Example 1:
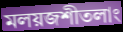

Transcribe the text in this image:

মলয়জশীতলাং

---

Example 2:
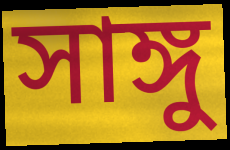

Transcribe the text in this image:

সাঙ্গু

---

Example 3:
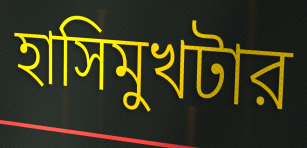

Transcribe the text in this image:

হাসিমুখটার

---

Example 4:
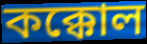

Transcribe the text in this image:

কক্কোল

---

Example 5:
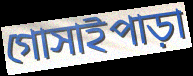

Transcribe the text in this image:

গোসাইপাড়া